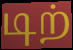
டிற்